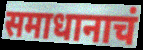
समाधानाचं